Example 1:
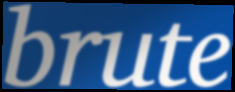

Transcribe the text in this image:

brute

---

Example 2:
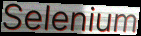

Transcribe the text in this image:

Selenium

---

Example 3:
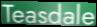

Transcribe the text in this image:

Teasdale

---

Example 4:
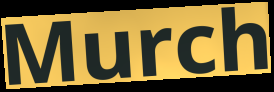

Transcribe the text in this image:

Murch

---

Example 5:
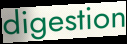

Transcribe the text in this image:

digestion